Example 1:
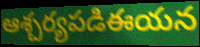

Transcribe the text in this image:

ఆశ్చర్యపడిఈయన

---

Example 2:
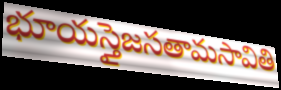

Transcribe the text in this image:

భూయస్తైజసతామసావితి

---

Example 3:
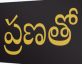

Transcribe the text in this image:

ప్రణతో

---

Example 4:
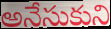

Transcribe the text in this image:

అనేసుకుని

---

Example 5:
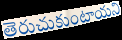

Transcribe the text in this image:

తెరుచుకుంటాయని